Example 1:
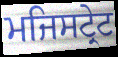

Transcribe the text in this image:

ਮਜਿਸਟ੍ਰੇਟ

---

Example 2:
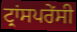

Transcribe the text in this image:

ਟ੍ਰਾਂਸਪਰੇਂਸੀ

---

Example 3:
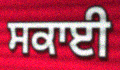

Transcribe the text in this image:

ਸਕਾਈ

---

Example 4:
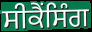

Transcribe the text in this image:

ਸੀਕੈਂਸਿੰਗ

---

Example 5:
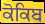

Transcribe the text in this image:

ਕੋਕਿਬ